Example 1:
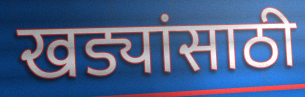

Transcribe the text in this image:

खड्यांसाठी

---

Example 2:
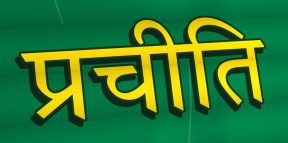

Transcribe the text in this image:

प्रचीति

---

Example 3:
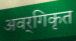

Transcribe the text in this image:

अवर्गिकृत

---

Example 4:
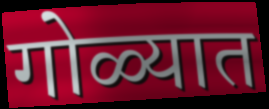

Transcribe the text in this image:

गोळ्यात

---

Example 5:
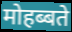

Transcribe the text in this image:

मोहब्बते